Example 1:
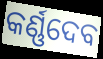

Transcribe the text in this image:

କର୍ଣ୍ଣଦେବ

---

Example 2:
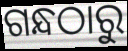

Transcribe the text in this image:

ଗନ୍ଧଠାରୁ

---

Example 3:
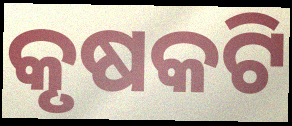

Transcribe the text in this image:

କୃଷକଟି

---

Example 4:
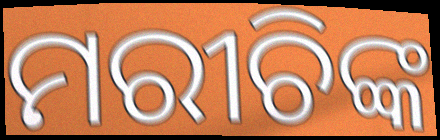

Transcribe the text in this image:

ମରୀଚିଙ୍କ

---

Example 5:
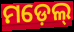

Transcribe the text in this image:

ମଡ଼େଲ୍